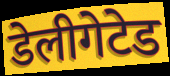
डेलीगेटेड